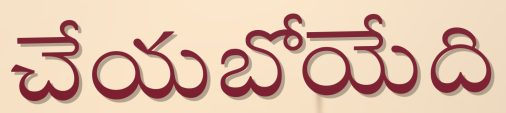
చేయబోయేది